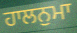
ਹਾਲਨੁਮਾ